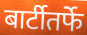
बार्टीतर्फे